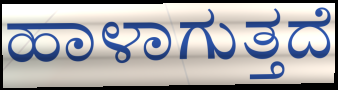
ಹಾಳಾಗುತ್ತದೆ